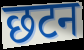
छटन